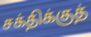
சக்திக்குத்